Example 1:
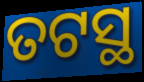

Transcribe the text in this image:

ତଟସ୍ଥ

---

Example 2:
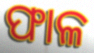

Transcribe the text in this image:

ଫାଳ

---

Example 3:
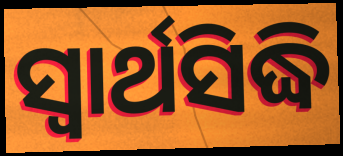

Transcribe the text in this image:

ସ୍ୱାର୍ଥସିଦ୍ଧି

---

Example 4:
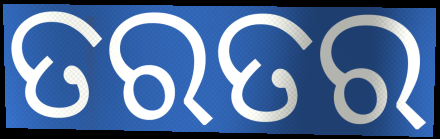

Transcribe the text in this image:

ତରତର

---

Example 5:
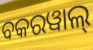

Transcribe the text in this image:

ବକରୱାଲ୍